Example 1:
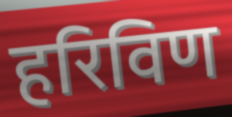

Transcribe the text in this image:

हरिविण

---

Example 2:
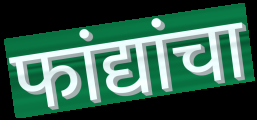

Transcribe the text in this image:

फांद्यांचा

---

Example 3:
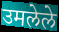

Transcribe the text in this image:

उमलेले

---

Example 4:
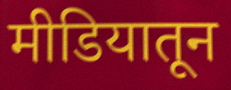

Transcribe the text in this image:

मीडियातून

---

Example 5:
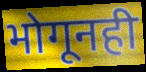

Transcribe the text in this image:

भोगूनही